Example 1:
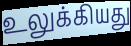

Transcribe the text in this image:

உலுக்கியது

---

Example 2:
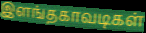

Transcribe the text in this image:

இளங்தகாவடிகள்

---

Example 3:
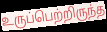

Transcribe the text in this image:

உருப்பெற்றிருந்த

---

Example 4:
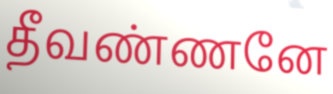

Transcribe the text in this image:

தீவண்ணனே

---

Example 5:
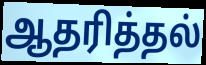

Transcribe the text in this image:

ஆதரித்தல்